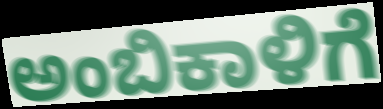
ಅಂಬಿಕಾಳಿಗೆ